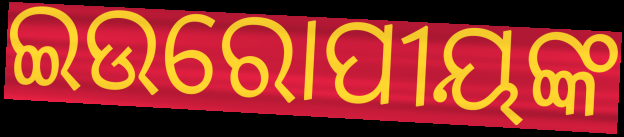
ଇଉରୋପୀୟଙ୍କ